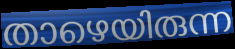
താഴെയിരുന്ന